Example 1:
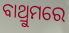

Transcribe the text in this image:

ବାଥ୍ରୁମରେ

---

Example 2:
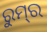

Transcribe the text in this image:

ରୁମ୍‌ର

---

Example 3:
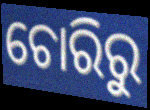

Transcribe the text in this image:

ଚୋରିରୁ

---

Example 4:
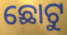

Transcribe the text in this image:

ଛୋଟୁ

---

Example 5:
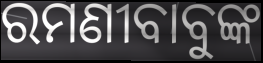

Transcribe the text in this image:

ରମଣୀବାବୁଙ୍କ